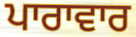
ਪਾਰਾਵਾਰ